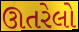
ઊતરેલો